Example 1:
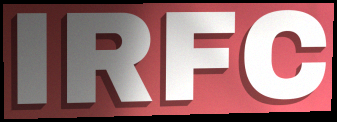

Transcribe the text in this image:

IRFC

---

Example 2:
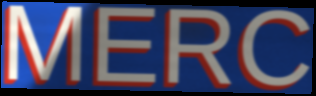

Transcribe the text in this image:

MERC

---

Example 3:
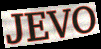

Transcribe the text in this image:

JEVO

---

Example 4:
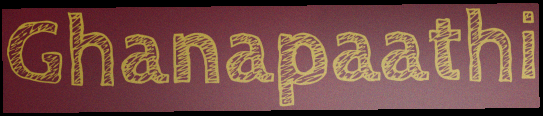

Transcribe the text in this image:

Ghanapaathi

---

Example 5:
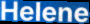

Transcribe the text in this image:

Helene